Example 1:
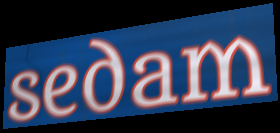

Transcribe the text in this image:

sedam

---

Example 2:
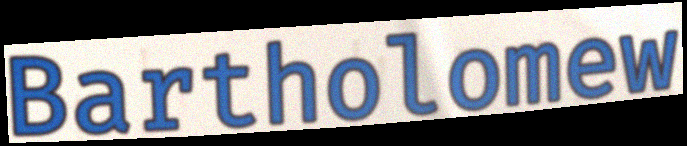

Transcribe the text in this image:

Bartholomew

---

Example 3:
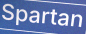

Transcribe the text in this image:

Spartan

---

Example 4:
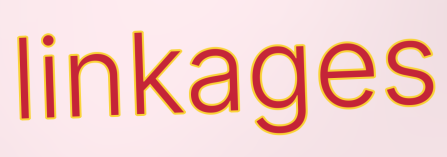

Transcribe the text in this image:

linkages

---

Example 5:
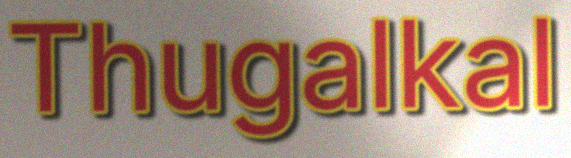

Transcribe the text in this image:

Thugalkal